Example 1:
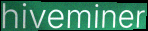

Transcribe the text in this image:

hiveminer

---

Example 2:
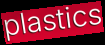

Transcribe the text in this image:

plastics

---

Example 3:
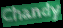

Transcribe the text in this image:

Chandy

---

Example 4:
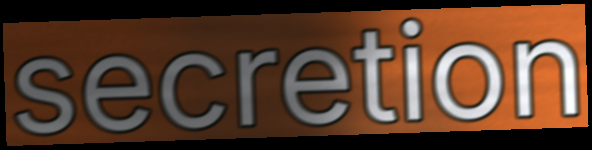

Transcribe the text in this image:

secretion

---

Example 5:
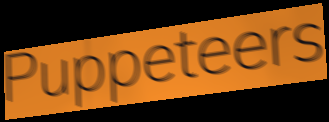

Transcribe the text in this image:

Puppeteers